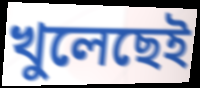
খুলেছেই